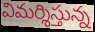
విమర్శిస్తున్న